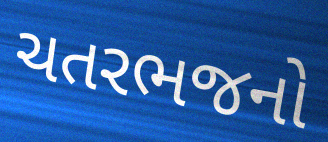
ચતરભજનો